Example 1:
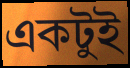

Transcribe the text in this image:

একটুই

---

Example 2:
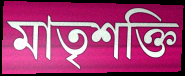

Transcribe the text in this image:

মাতৃশক্তি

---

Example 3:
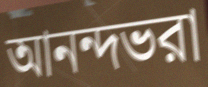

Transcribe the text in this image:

আনন্দভরা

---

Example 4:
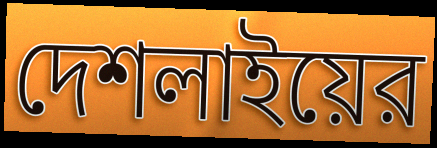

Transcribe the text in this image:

দেশলাইয়ের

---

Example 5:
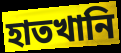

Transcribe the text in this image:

হাতখানি